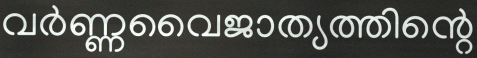
വർണ്ണവൈജാത്യത്തിന്റെ